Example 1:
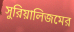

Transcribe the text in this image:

সুরিয়ালিজমের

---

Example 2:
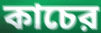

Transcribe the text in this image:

কাচের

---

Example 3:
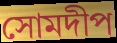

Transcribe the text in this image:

সোমদীপ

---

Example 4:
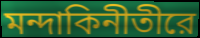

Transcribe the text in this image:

মন্দাকিনীতীরে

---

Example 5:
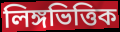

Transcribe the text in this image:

লিঙ্গভিত্তিক